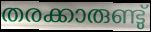
തരക്കാരുണ്ടു്